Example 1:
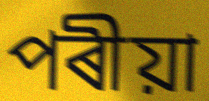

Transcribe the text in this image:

পৰীয়া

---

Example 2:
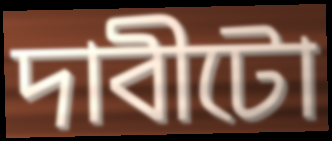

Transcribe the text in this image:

দাবীটো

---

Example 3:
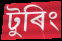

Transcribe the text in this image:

টুৰিং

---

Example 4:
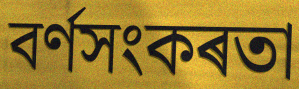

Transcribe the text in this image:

বৰ্ণসংকৰতা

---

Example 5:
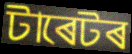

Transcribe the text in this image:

টাৰেটৰ